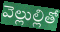
వెల్లుల్లితో